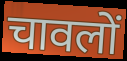
चावलों